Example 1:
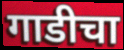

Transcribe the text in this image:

गाडीचा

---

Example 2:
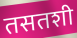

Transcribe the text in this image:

तसतशी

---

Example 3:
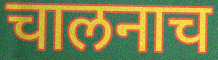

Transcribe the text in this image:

चालनाच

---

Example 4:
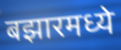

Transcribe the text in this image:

बझारमध्ये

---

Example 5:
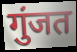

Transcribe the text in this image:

गुंजत